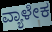
ವ್ಯಾಳೇಕ